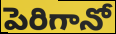
పెరిగానో